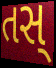
તસ્